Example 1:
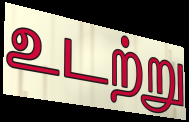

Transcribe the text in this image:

உடற்று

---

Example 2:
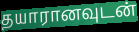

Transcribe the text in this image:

தயாரானவுடன்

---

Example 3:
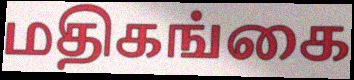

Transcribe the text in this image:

மதிகங்கை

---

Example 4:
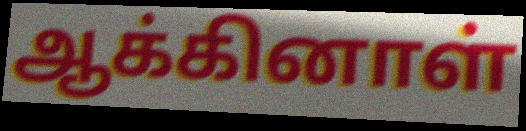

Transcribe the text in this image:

ஆக்கினாள்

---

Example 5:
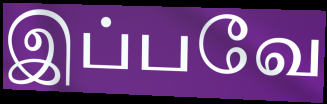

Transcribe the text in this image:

இப்பவே